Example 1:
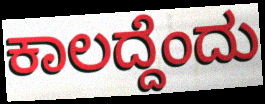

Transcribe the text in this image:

ಕಾಲದ್ದೆಂದು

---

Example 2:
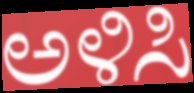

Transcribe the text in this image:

ಅಳಿಸಿ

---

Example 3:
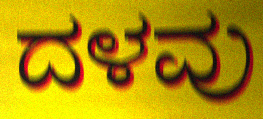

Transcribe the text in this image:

ದಳವು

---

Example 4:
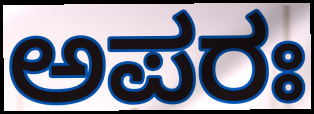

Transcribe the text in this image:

ಅಪರಃ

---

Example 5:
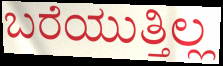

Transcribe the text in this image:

ಬರೆಯುತ್ತಿಲ್ಲ